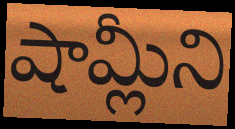
షామ్లీని